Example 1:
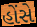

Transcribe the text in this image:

હોંસે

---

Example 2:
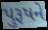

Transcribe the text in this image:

પુરૂષને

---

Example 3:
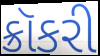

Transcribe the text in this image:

ક્રૉકરી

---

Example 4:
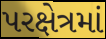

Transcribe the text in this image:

પરક્ષેત્રમાં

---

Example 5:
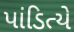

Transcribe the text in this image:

પાંડિત્યે